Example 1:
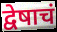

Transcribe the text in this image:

द्वेषाचं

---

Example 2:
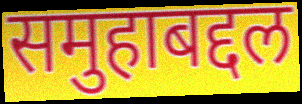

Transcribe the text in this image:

समुहाबद्दल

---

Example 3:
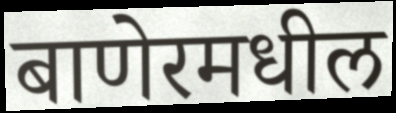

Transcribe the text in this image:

बाणेरमधील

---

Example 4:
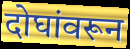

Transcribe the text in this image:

दोघांवरून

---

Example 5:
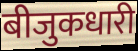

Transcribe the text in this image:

बीजुकधारी